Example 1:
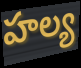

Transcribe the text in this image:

హల్య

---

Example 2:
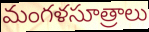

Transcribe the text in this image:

మంగళసూత్రాలు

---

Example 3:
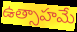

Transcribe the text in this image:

ఉత్సాహమే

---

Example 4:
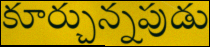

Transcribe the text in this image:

కూర్చున్నపుడు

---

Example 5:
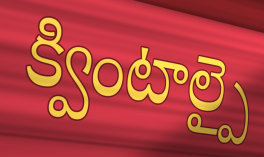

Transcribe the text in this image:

క్వింటాల్పై